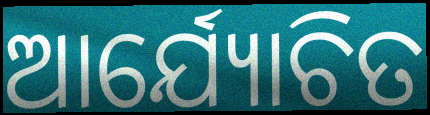
ଆର୍ଯ୍ୟୋଚିତ